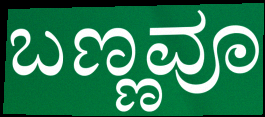
ಬಣ್ಣವೂ